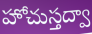
హోచుస్తద్వా